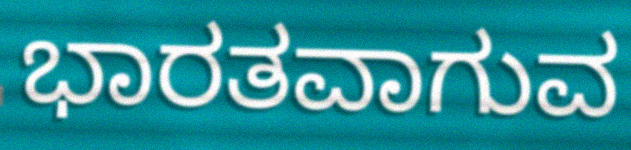
ಭಾರತವಾಗುವ